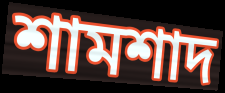
শামশাদ